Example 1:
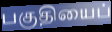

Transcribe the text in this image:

பகுதியைப்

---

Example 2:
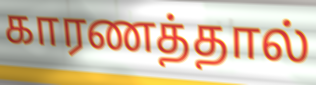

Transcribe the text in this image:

காரணத்தால்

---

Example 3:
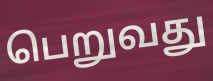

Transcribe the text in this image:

பெறுவது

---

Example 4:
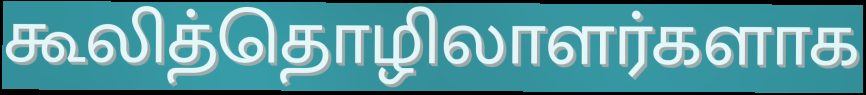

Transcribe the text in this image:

கூலித்தொழிலாளர்களாக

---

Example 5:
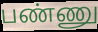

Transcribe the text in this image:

பண்ணு